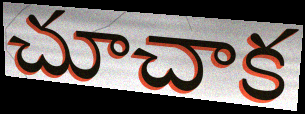
చూచాక